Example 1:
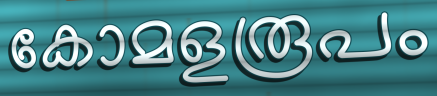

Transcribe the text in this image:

കോമളരൂപം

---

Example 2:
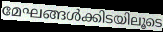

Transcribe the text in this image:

മേഘങ്ങൾക്കിടയിലൂടെ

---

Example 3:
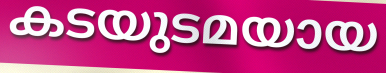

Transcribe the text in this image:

കടയുടമയായ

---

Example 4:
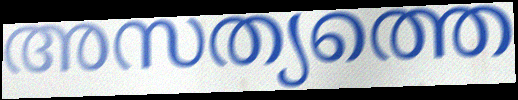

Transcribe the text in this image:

അസത്യത്തെ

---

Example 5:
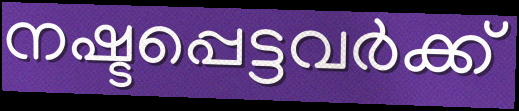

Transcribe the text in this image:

നഷ്ടപ്പെട്ടവർക്ക്